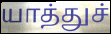
யாத்துச்